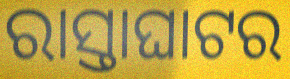
ରାସ୍ତାଘାଟର